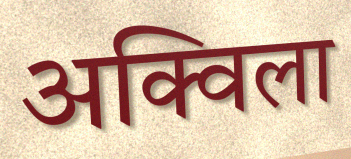
अक्विला